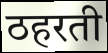
ठहरती